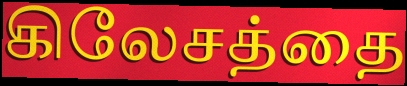
கிலேசத்தை